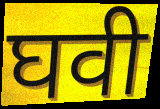
घवी